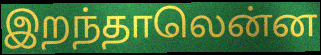
இறந்தாலென்ன